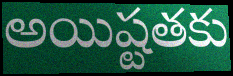
అయిష్టతకు